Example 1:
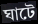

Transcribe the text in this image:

ঘাটে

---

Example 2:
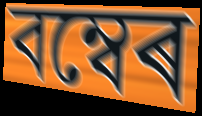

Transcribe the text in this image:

বম্বেৰ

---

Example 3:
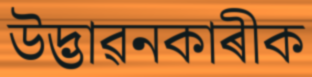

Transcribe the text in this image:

উদ্ভাৱনকাৰীক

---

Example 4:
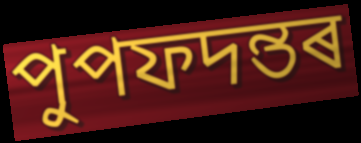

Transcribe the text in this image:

পুপফদন্তৰ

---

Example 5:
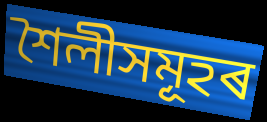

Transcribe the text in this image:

শৈলীসমূহৰ